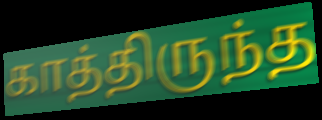
காத்திருந்த